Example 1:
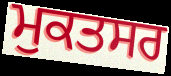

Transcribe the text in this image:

ਮੁਕਤਸਰ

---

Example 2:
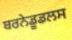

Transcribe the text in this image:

ਬਰਨੇਡੂਡਲਸ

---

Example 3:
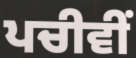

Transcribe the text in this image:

ਪਚੀਵੀਂ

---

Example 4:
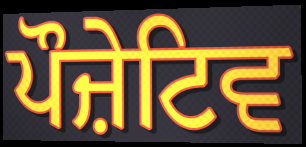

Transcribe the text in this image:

ਪੌਜ਼ੇਟਿਵ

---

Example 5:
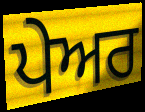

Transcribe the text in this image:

ਪੇਅਰ